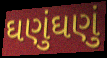
ઘણુંઘણું